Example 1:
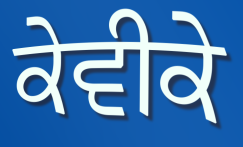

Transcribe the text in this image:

ਕੇਵੀਕੇ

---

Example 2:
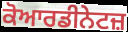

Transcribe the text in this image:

ਕੋਆਰਡੀਨੇਟਜ਼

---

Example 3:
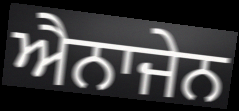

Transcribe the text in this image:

ਐਨਾਜੇਨ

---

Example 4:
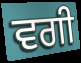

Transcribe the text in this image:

ਵਗੀ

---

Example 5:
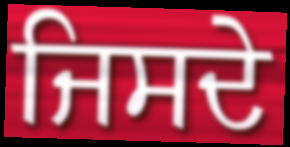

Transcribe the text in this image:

ਜਿਸਦੇ